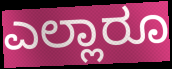
ಎಲ್ಲಾರೂ